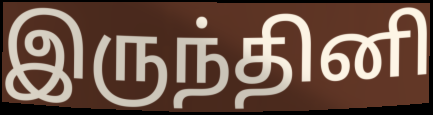
இருந்தினி